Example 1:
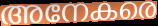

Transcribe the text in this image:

അനേകരെ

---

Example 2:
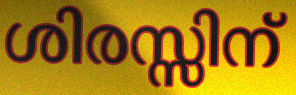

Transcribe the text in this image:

ശിരസ്സിന്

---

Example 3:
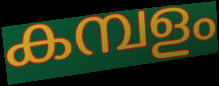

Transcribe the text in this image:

കമ്പളം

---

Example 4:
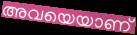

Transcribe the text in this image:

അവയെയാണ്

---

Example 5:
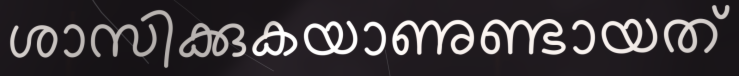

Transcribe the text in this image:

ശാസിക്കുകയാണുണ്ടായത്